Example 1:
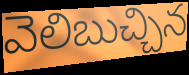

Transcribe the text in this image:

వెలిబుచ్చిన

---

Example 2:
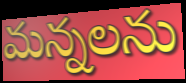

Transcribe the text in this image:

మన్నలను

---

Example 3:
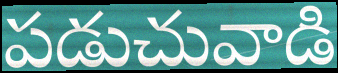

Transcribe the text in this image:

పడుచువాడి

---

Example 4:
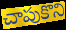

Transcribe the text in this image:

చాపుకొని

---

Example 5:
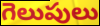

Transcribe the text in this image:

గెలుపులు